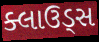
ક્લાઉડ્સ